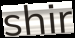
shir